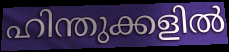
ഹിന്തുക്കളിൽ